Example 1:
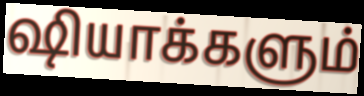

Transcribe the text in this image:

ஷியாக்களும்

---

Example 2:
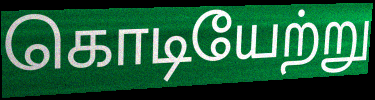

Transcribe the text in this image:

கொடியேற்று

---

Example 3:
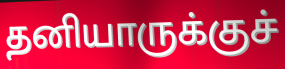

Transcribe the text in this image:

தனியாருக்குச்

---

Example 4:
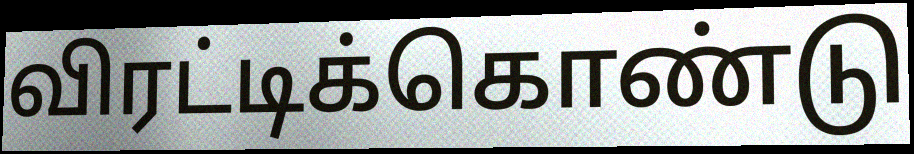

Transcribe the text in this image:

விரட்டிக்கொண்டு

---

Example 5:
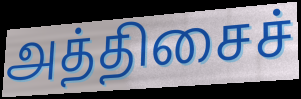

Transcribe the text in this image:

அத்திசைச்